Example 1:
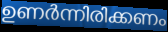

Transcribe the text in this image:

ഉണർന്നിരിക്കണം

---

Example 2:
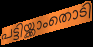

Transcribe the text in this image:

പട്ടിയ്ക്കാംതൊടി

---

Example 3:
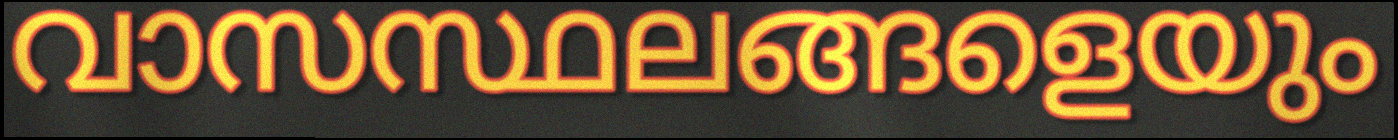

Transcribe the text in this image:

വാസസ്ഥലങ്ങളെയും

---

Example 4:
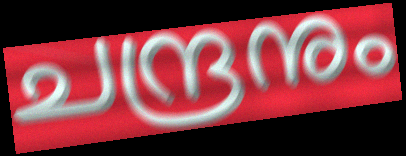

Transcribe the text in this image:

ചന്ദ്രനും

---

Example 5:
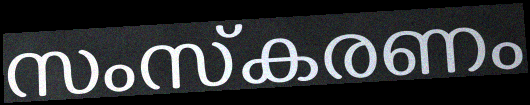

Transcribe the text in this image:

സംസ്‌കരണം